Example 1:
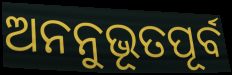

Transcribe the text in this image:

ଅନନୁଭୂତପୂର୍ବ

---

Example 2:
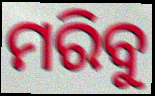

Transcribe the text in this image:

ମରିବୁ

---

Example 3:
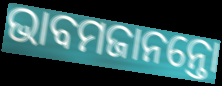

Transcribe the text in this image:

ଭାବମଜାନନ୍ତୋ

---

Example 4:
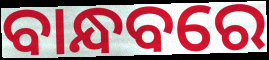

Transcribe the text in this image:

ବାନ୍ଧବରେ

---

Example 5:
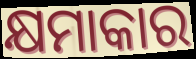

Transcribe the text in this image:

କ୍ଷମାକାର